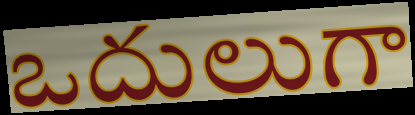
ఒదులుగా